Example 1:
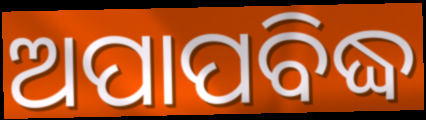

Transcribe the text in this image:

ଅପାପବିଦ୍ଧ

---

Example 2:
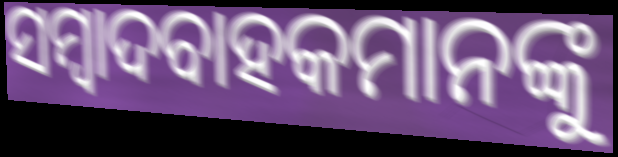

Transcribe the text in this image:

ସମ୍ବାଦବାହକମାନଙ୍କୁ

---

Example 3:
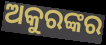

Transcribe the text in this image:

ଅକୁରଙ୍କର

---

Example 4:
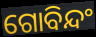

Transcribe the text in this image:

ଗୋବିନ୍ଦଂ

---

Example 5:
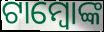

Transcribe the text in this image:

ଟାମ୍ବୋଙ୍କ